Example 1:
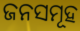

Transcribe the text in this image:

ଜନସମୂହ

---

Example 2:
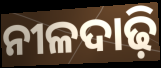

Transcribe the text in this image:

ନୀଳଦାଢ଼ି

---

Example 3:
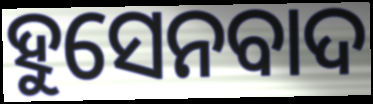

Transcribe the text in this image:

ହୁସେନବାଦ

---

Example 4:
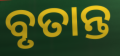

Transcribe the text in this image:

ବୃତାନ୍ତ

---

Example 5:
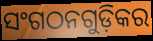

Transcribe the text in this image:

ସଂଗଠନଗୁଡ଼ିକର